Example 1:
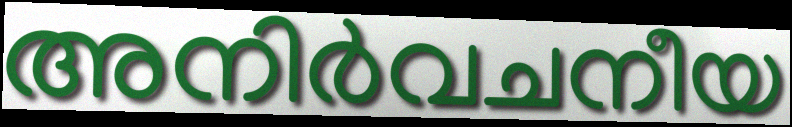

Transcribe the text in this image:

അനിർവചനീയ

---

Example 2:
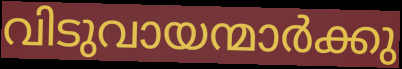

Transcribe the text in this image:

വിടുവായന്മാർക്കു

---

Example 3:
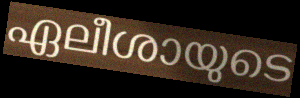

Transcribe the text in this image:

ഏലീശായുടെ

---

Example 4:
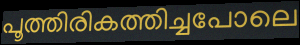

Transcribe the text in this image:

പൂത്തിരികത്തിച്ചപോലെ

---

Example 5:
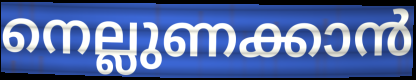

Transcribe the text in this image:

നെല്ലുണക്കാൻ